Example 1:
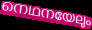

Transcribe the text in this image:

നെഥനയേലും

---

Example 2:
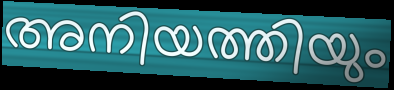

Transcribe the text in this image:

അനിയത്തിയും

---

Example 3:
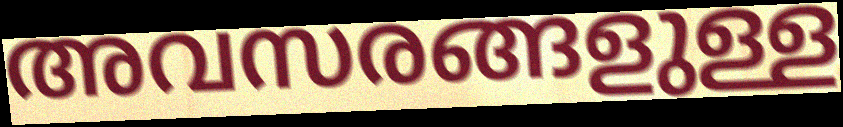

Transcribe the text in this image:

അവസരങ്ങളുള്ള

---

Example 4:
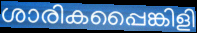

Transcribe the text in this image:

ശാരികപ്പൈങ്കിളി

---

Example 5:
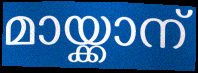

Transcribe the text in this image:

മായ്ക്കാന്